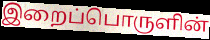
இறைப்பொருளின்